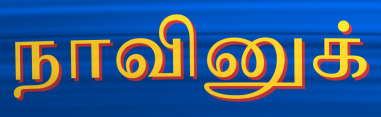
நாவினுக்